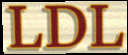
LDL